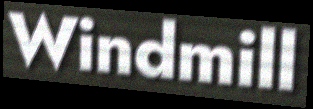
Windmill